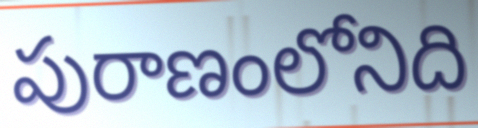
పురాణంలోనిది